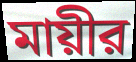
মায়ীর